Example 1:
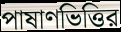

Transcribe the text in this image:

পাষাণভিত্তির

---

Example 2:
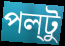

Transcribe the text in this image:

পল্‌টু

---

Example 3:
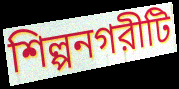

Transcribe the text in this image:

শিল্পনগরীটি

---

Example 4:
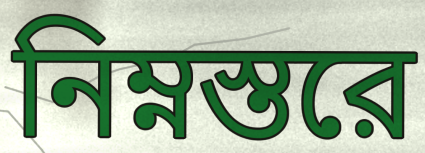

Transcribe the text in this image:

নিম্নস্তরে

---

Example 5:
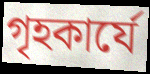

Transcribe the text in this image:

গৃহকার্যে